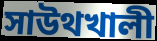
সাউথখালী